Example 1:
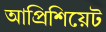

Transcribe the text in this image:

আপ্রিশিয়েট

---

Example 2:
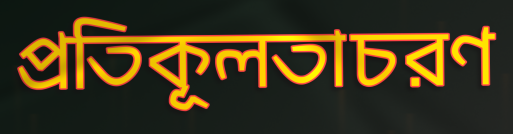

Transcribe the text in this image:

প্রতিকূলতাচরণ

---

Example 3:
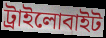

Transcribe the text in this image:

ট্রাইলোবাইট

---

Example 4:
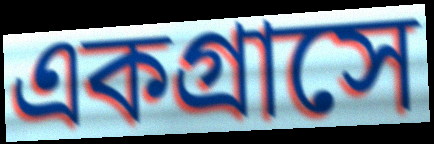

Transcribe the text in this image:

একগ্রাসে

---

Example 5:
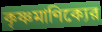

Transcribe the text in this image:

কৃষ্ণমাণিক্যের